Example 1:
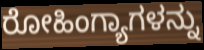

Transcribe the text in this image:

ರೋಹಿಂಗ್ಯಾಗಳನ್ನು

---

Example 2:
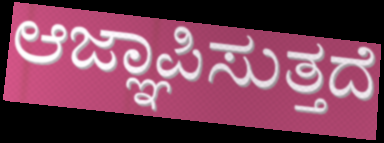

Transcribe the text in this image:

ಆಜ್ಞಾಪಿಸುತ್ತದೆ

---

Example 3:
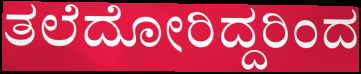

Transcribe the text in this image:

ತಲೆದೋರಿದ್ದರಿಂದ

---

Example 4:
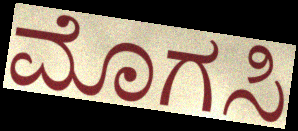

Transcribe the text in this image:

ಮೊಗಸಿ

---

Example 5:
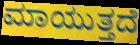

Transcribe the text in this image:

ಮಾಯುತ್ತದೆ